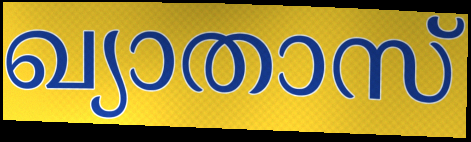
ഖ്യാതാസ്